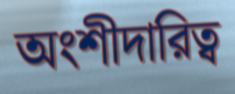
অংশীদারিত্ব